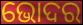
ଭୋଦର